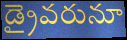
డ్రైవరునూ